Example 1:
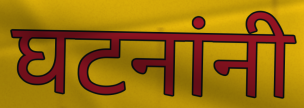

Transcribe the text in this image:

घटनांनी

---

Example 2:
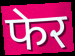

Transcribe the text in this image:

फेर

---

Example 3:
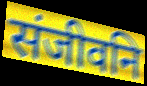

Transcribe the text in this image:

संजीवनि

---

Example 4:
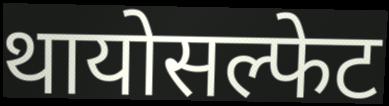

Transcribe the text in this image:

थायोसल्फेट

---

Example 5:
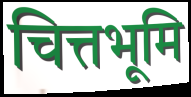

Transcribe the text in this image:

चित्तभूमि